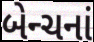
બેન્ચનાં